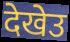
देखेउ